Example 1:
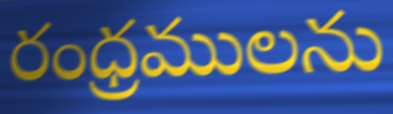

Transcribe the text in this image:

రంధ్రములను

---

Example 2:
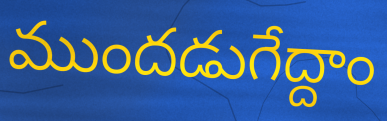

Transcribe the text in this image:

ముందడుగేద్దాం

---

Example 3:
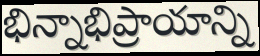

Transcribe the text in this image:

భిన్నాభిప్రాయాన్ని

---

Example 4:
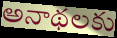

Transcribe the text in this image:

అనాథలకు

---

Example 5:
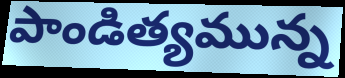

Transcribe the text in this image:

పాండిత్యమున్న